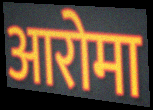
आरोमा